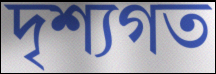
দৃশ্যগত